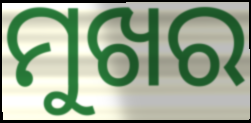
ମୁଖର